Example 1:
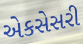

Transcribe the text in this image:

એકસેસરી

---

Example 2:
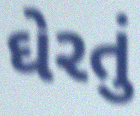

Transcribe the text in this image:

ઘેરતું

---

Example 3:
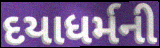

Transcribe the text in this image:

દયાધર્મની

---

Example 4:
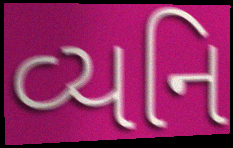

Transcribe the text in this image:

વ્યનિ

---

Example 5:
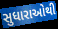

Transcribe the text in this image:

સુધારાઓથી